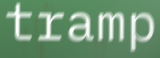
tramp